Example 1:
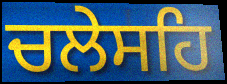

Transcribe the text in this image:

ਚਲੇਸਹਿ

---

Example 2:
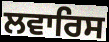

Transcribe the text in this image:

ਲਵਾਰਿਸ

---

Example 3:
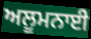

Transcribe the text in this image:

ਅਲੂਮਨਾਈ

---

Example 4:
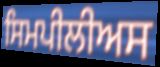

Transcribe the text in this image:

ਸਿਮਪੀਲੀਅਸ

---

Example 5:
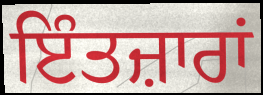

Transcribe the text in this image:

ਇੰਤਜ਼ਾਰਾਂ